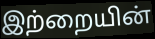
இற்றையின்